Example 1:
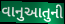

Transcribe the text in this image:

વાનુઆતુની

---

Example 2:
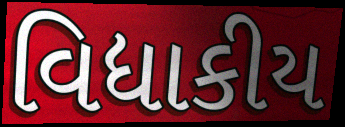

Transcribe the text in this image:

વિદ્યાકીય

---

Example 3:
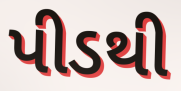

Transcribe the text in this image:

પીડથી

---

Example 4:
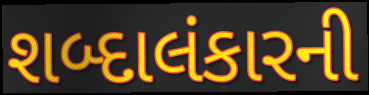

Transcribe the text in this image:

શબ્દાલંકારની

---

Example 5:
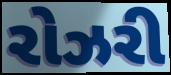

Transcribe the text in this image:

રોઝરી